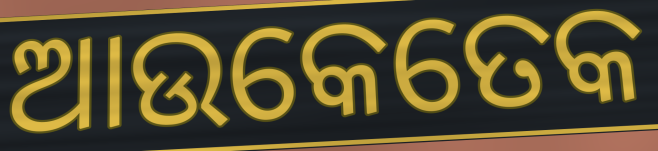
ଆଉକେତେକ